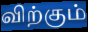
விற்கும்